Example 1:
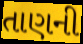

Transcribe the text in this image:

તાણની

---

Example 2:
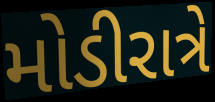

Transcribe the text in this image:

મોડીરાત્રે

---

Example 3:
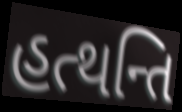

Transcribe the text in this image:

હત્થન્તિ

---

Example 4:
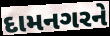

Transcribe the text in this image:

દામનગરને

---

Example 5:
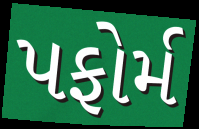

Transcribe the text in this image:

પફોર્મ